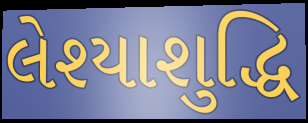
લેશ્યાશુદ્ધિ